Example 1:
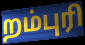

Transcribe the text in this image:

றம்புரி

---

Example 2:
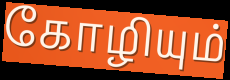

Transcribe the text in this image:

கோழியும்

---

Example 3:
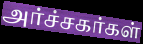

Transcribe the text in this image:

அர்ச்சகர்கள்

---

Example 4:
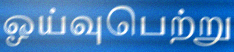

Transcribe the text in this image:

ஓய்வுபெற்று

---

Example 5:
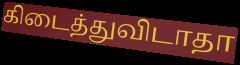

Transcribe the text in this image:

கிடைத்துவிடாதா